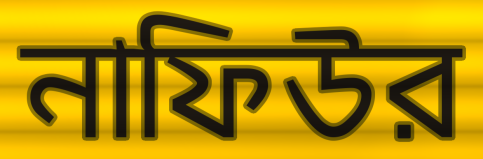
নাফিউর